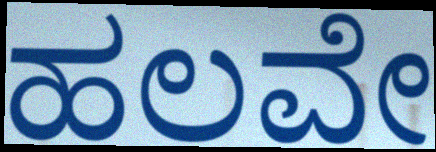
ಹಲವೇ